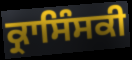
ਕ੍ਰਾਸਿੰਸਕੀ